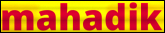
mahadik